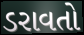
ડરાવતો